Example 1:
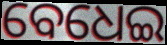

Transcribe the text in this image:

ବେଧେଇ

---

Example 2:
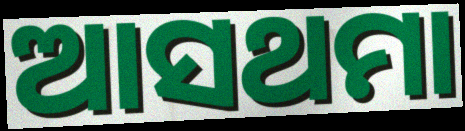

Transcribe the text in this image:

ଆସଥମା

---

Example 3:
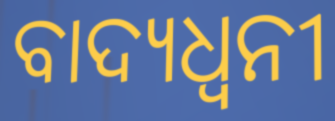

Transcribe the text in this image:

ବାଦ୍ୟଧ୍ୱନୀ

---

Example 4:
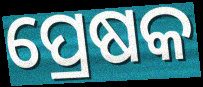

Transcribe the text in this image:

ପ୍ରେଷକ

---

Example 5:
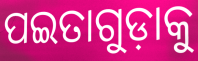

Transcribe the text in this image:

ପଇତାଗୁଡ଼ାକୁ